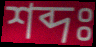
শব্দঃ